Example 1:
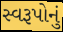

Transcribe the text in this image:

સ્વરૂપોનું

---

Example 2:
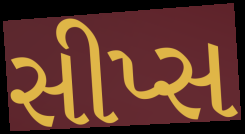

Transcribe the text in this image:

સીપ્સ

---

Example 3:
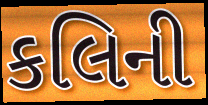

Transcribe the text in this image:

કલિની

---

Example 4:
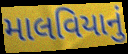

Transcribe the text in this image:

માલવિયાનું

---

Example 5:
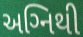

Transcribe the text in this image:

અગ્‍નિથી